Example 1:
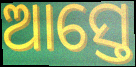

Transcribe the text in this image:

ଆସ୍ତେ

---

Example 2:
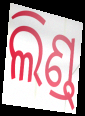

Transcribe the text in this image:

ଲିଣ୍ଡ୍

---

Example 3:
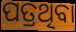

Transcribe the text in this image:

ପତ୍ରଥିବା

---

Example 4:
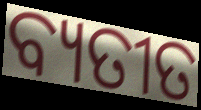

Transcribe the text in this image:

ବ୍ଯତୀତ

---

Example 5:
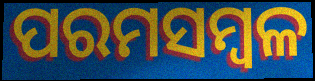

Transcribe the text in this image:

ପରମସମ୍ବଳ